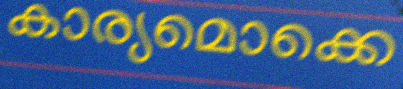
കാര്യമൊക്കെ